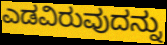
ಎಡವಿರುವುದನ್ನು